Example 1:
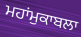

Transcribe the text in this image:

ਮਹਾਂਮੁਕਾਬਲਾ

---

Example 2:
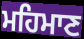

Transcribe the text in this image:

ਮਹਿਮਾਣ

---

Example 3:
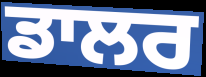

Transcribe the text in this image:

ਡਾਲਰ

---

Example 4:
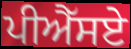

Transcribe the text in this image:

ਪੀਐੱਸਏ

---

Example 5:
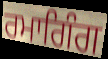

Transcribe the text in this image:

ਰਮਾਗਿੰਗ